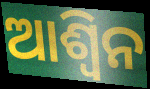
ଆଶ୍ୱିନ